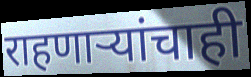
राहणाऱ्यांचाही